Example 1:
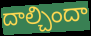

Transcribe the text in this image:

దాల్చిందా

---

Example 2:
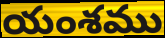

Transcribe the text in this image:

యంశము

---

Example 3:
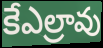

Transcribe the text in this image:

కేఎల్రావు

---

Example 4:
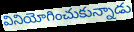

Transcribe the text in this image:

వినియోగించుకున్నాడు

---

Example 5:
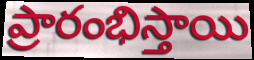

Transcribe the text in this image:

ప్రారంభిస్తాయి